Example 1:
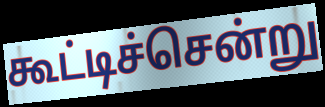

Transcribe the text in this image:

கூட்டிச்சென்று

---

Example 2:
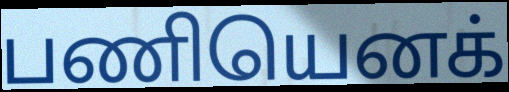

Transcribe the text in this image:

பணியெனக்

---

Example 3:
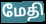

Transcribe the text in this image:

மேதி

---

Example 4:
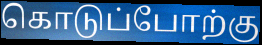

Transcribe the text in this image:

கொடுப்போற்கு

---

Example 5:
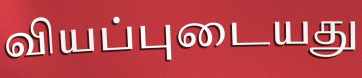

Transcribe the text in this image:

வியப்புடையது